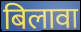
बिलावा